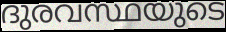
ദുരവസ്ഥയുടെ